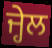
ਜ੍ਹੇਲ